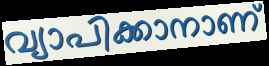
വ്യാപിക്കാനാണ്